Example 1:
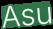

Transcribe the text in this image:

Asu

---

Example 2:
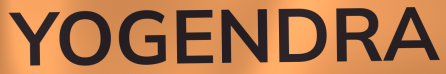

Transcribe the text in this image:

YOGENDRA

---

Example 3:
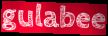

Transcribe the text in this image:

gulabee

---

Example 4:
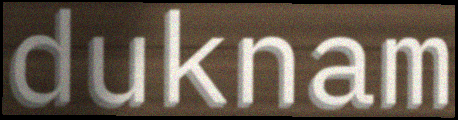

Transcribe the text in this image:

duknam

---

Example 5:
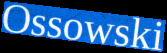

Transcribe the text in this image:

Ossowski